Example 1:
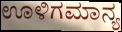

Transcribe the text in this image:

ಊಳಿಗಮಾನ್ಯ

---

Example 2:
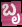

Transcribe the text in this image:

ಬೃ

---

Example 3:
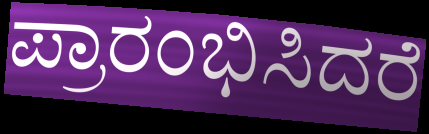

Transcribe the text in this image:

ಪ್ರಾರಂಭಿಸಿದರೆ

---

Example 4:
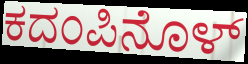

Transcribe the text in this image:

ಕದಂಪಿನೊಳ್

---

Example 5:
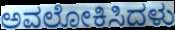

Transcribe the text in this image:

ಅವಲೋಕಿಸಿದಳು